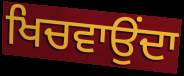
ਖਿਚਵਾਉਂਦਾ